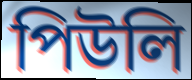
পিউলি